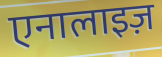
एनालाइज़